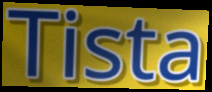
Tista